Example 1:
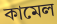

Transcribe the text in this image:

কামেল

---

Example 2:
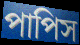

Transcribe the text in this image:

পাপিস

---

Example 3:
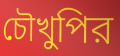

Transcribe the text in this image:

চৌখুপির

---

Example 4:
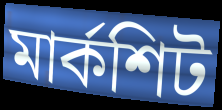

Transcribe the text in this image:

মার্কশিট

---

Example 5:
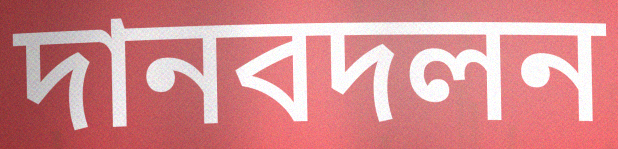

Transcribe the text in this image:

দানবদলন